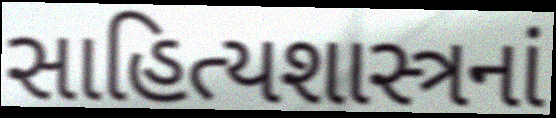
સાહિત્યશાસ્ત્રનાં